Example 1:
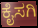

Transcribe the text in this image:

ಕೈಸಗಿ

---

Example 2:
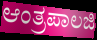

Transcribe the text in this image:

ಆಂತ್ರಪಾಲಜಿ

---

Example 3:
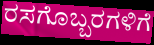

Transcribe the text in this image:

ರಸಗೊಬ್ಬರಗಳಿಗೆ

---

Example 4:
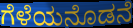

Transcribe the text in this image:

ಗೆಳೆಯನೊಡನೆ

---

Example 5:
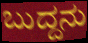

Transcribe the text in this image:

ಬುದ್ದನು